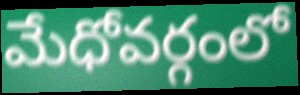
మేధోవర్గంలో